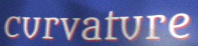
curvature